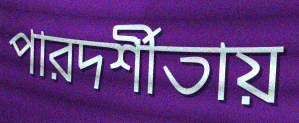
পারদর্শীতায়